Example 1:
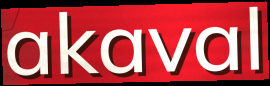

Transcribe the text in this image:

akaval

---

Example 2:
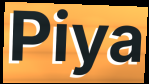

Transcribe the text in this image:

Piya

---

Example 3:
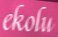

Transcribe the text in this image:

ekolu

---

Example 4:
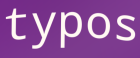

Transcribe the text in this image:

typos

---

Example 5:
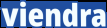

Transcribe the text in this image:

viendra